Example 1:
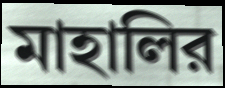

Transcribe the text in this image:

মাহালির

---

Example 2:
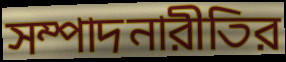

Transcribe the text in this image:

সম্পাদনারীতির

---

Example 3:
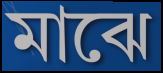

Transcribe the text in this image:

মাঝে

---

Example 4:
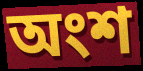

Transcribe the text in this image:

অংশ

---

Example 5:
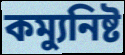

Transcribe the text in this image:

কম্যুনিষ্ট